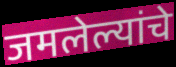
जमलेल्यांचे